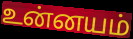
உன்னயம்